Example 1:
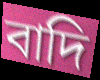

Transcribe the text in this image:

বাদি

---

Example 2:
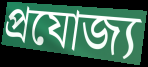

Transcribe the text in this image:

প্ৰযোজ্য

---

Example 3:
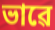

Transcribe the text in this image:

ভাৱে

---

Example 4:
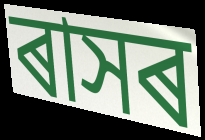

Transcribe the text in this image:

ৰাসৰ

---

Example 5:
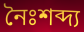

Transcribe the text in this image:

নৈঃশব্দ্য